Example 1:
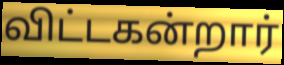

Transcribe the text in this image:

விட்டகன்றார்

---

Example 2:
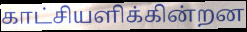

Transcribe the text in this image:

காட்சியளிக்கின்றன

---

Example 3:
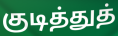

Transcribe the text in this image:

குடித்துத்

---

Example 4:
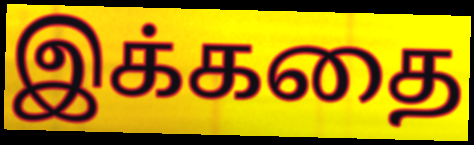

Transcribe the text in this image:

இக்கதை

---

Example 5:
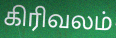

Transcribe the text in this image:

கிரிவலம்